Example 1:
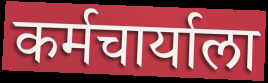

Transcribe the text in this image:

कर्मचार्याला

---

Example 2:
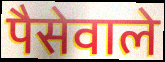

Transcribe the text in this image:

पैसेवाले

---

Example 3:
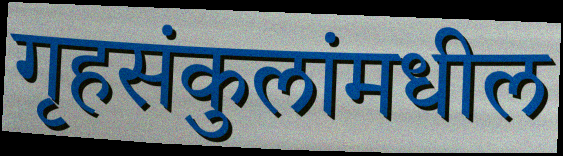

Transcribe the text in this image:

गृहसंकुलांमधील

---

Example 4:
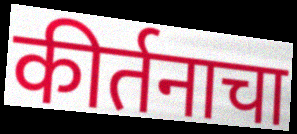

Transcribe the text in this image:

कीर्तनाचा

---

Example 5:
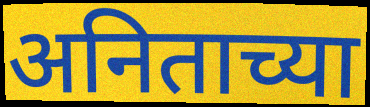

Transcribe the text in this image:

अनिताच्या